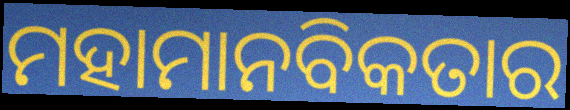
ମହାମାନବିକତାର